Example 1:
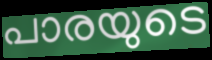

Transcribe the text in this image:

പാരയുടെ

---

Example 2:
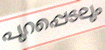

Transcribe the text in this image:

പുറപ്പെടലും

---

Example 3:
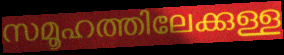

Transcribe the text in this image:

സമൂഹത്തിലേക്കുള്ള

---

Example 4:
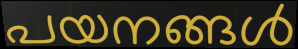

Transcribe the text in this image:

പയനങ്ങൾ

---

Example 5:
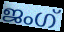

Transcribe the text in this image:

ജംഗ്